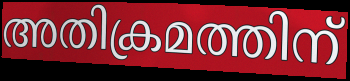
അതിക്രമത്തിന്